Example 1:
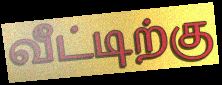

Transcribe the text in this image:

வீட்டிற்கு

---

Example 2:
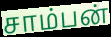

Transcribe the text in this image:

சாம்பன்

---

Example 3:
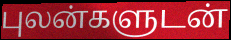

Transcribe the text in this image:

புலன்களுடன்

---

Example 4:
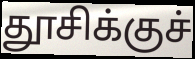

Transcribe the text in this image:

தூசிக்குச்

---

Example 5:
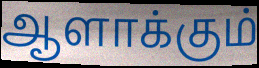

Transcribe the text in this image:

ஆளாக்கும்